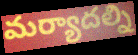
మర్యాదల్ని